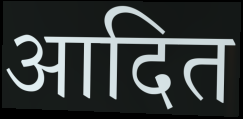
आदित